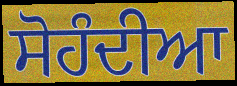
ਸੋਹੰਦੀਆ